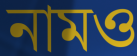
নামও